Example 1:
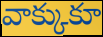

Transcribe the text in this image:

వాక్కుకూ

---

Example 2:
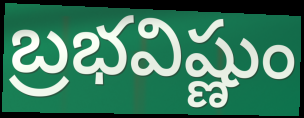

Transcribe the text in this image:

బ్రభవిష్ణుం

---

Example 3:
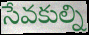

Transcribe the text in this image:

సేవకుల్ని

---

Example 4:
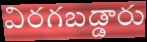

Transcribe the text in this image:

విరగబడ్డారు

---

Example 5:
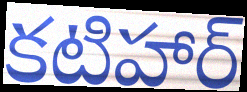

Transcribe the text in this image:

కటిహార్